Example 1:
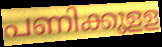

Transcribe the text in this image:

പണിക്കുളള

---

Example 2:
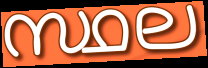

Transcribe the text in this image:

സ്ഥല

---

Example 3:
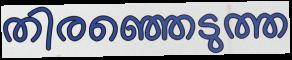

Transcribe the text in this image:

തിരഞ്ഞെടുത്ത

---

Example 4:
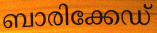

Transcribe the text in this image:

ബാരിക്കേഡ്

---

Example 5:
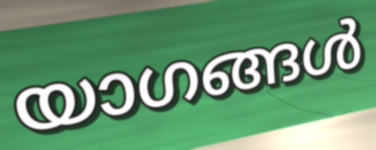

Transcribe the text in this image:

യാഗങ്ങൾ